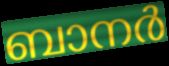
ബാനർ